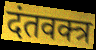
दंतवक्त्र